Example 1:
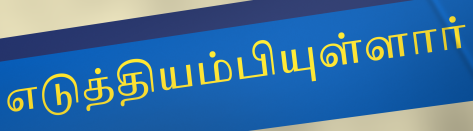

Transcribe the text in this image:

எடுத்தியம்பியுள்ளார்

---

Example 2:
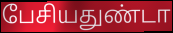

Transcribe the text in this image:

பேசியதுண்டா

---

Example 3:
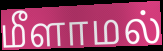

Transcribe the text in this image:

மீளாமல்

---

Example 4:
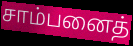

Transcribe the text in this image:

சாம்பனைத்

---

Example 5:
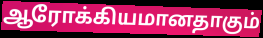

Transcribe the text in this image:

ஆரோக்கியமானதாகும்